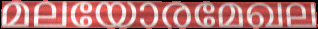
മലയോരമേഖല